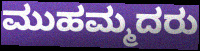
ಮುಹಮ್ಮದರು